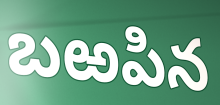
బఱపిన